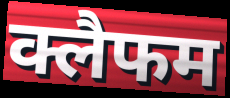
क्लैफम